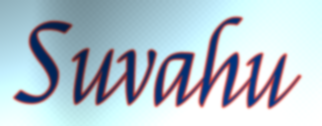
Suvahu